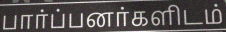
பார்ப்பனர்களிடம்